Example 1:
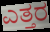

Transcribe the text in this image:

ಎತ್ತರ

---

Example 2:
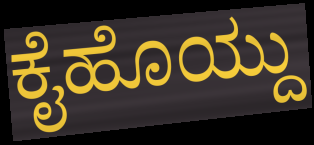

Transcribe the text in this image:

ಕೈಹೊಯ್ದು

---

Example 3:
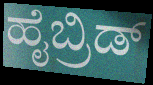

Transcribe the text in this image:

ಹೈಬ್ರಿಡ್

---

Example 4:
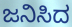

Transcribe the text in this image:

ಜನಿಸಿದ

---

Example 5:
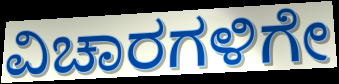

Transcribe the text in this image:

ವಿಚಾರಗಳಿಗೇ